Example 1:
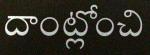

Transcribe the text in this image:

దాంట్లోంచి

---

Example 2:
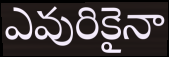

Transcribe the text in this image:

ఎవురికైనా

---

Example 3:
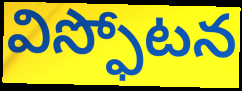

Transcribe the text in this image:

విస్ఫోటన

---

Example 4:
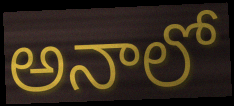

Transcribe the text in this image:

అనాలో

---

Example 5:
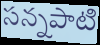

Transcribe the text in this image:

సన్నపాటి